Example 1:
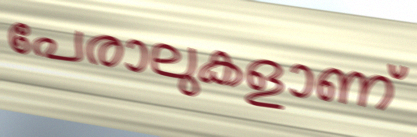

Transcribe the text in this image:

പേരാലുകളാണ്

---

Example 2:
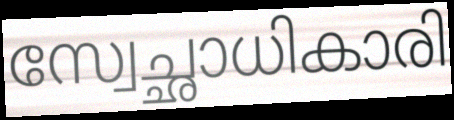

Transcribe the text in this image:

സ്വേച്ഛാധികാരി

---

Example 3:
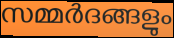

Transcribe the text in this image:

സമ്മർദങ്ങളും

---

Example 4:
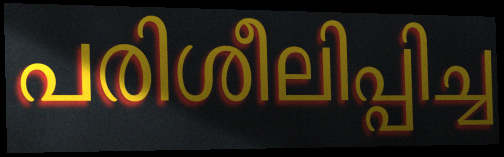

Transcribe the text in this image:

പരിശീലിപ്പിച്ച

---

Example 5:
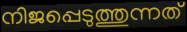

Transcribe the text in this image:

നിജപ്പെടുത്തുന്നത്